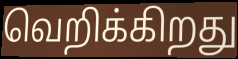
வெறிக்கிறது